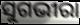
ସୁଗଭୀରା